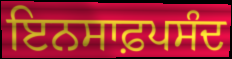
ਇਨਸਾਫ਼ਪਸੰਦ